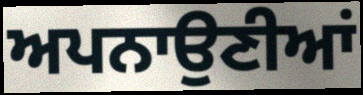
ਅਪਨਾਉਣੀਆਂ